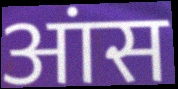
आंस